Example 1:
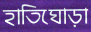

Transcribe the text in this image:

হাতিঘোড়া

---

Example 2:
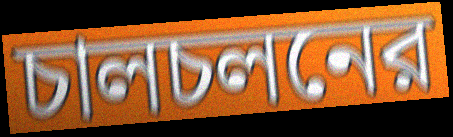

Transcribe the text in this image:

চালচলনের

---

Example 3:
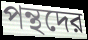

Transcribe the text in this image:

পন্থদের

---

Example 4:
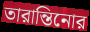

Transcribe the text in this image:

তারান্তিনোর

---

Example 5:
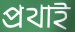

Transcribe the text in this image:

প্রথাই